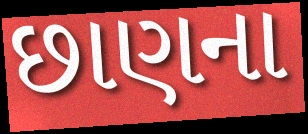
છાણના